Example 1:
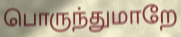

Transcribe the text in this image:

பொருந்துமாறே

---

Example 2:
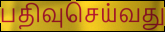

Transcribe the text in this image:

பதிவுசெய்வது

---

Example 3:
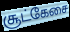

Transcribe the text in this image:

சூட்கேசை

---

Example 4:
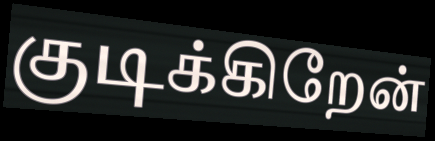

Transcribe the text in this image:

குடிக்கிறேன்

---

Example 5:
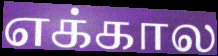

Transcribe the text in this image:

எக்கால